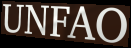
UNFAO